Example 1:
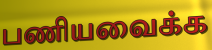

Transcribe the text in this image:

பணியவைக்க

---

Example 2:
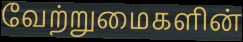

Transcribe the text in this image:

வேற்றுமைகளின்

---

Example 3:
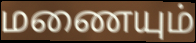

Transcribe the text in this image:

மணையும்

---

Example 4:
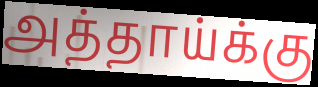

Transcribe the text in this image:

அத்தாய்க்கு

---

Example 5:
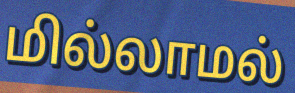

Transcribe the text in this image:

மில்லாமல்